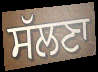
ਸੱਲਣਾ